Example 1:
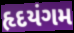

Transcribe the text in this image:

હૃદયંગમ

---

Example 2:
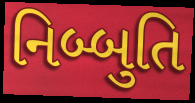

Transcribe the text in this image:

નિબ્બુતિ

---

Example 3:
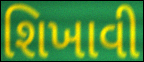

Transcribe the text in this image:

શિખાવી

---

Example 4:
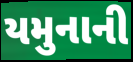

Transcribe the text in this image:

યમુનાની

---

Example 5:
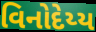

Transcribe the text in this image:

વિનોદેય્ય